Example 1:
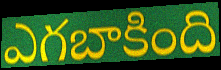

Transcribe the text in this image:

ఎగబాకింది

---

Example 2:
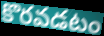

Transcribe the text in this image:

కొరవడటం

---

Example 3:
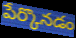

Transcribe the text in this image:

పేర్కొనడం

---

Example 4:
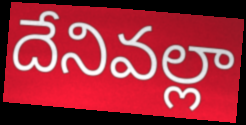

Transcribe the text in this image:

దేనివల్లా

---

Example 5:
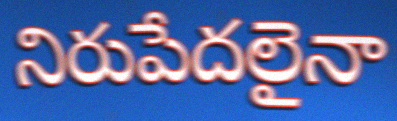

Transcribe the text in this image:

నిరుపేదలైనా